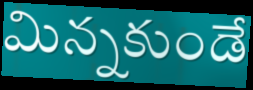
మిన్నకుండే